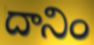
దానిం